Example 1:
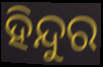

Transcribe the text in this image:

ହିନ୍ଦୁର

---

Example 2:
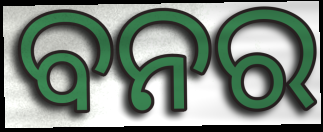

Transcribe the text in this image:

ବନର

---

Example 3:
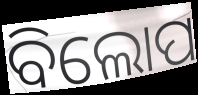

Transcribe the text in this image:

ବିଲୋପ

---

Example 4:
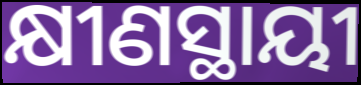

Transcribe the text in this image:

କ୍ଷୀଣସ୍ଥାୟୀ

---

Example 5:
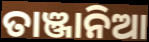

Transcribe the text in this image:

ତାଞ୍ଜାନିଆ